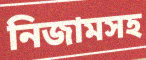
নিজামসহ